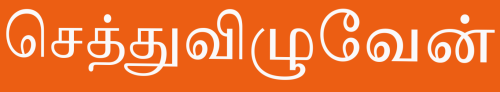
செத்துவிழுவேன்